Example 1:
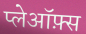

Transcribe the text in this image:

प्लेऑफ़्स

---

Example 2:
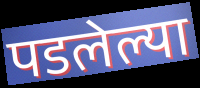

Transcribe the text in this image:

पडलेल्या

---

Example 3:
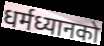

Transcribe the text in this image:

धर्मध्यानको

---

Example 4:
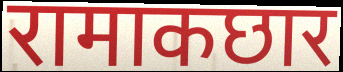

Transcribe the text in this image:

रामाकछार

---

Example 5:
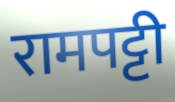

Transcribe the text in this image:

रामपट्टी